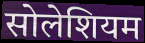
सोलेशियम